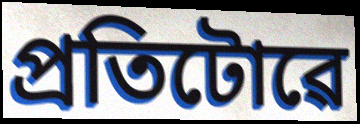
প্ৰতিটোৱে